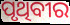
ପୃଥିବୀର